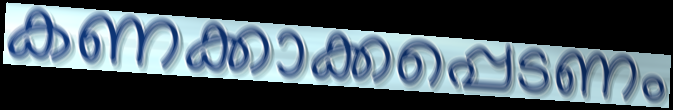
കണക്കാക്കപ്പെടണം